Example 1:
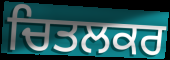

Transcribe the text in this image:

ਚਿਤਲਕਰ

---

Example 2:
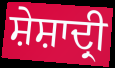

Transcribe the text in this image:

ਸ਼ੇਸ਼ਾਦ੍ਰੀ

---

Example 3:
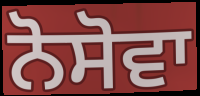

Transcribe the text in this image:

ਨੋਸੋਵਾ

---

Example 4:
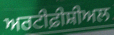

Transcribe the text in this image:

ਅਰਟੀਫ਼ੀਸ਼ੀਅਲ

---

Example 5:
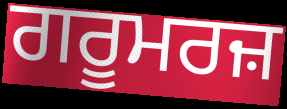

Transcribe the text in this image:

ਗਰੂਮਰਜ਼